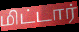
மிட்டார்